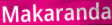
Makaranda